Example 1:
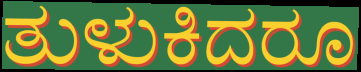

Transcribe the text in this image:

ತುಳುಕಿದರೂ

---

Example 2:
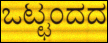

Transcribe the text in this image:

ಒಟ್ಟಂದದ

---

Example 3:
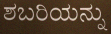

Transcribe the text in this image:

ಶಬರಿಯನ್ನು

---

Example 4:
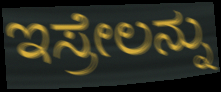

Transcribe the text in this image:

ಇಸ್ರೇಲನ್ನು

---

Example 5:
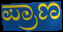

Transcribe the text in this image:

ಪ್ರಾಣ